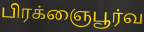
பிரக்ஞைபூர்வ